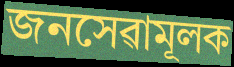
জনসেৱামূলক